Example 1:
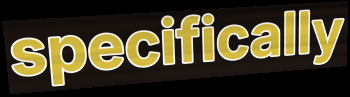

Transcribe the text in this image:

specifically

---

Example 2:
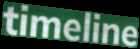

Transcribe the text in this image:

timeline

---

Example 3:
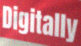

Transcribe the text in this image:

Digitally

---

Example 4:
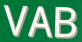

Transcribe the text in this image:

VAB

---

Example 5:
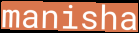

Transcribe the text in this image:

manisha